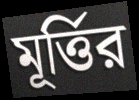
মূর্ত্তির